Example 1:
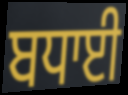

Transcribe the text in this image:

ਬਧਾਈ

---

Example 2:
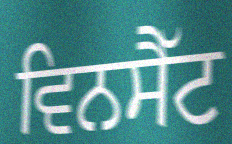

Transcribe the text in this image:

ਵਿਨਸੈੱਟ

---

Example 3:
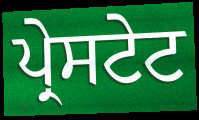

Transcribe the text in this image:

ਪ੍ਰੇਸਟੇਟ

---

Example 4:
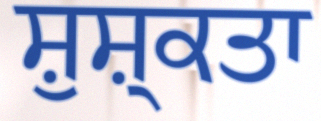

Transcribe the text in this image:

ਸ਼ੁਸ਼੍ਕਤਾ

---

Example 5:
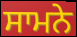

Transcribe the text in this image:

ਸਾਮਨੇ